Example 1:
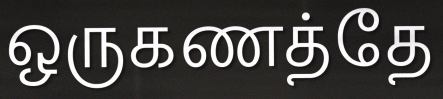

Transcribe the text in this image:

ஒருகணத்தே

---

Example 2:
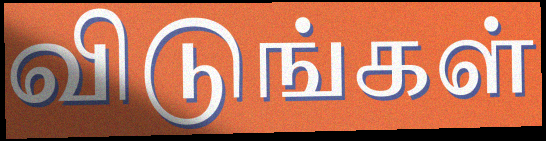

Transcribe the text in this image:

விடுங்கள்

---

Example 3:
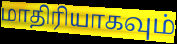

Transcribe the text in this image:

மாதிரியாகவும்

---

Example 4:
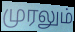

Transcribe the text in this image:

முரலும்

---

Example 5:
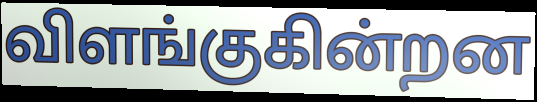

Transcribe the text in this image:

விளங்குகின்றன